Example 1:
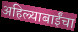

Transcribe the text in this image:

अहिल्याबाईंचा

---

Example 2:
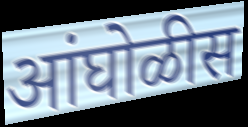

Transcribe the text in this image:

आंघोळीस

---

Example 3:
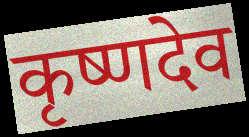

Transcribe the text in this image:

कृष्णदेव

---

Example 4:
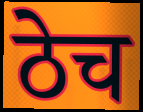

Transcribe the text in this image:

ठेच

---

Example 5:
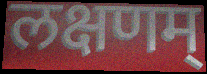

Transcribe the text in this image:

लक्षणम्